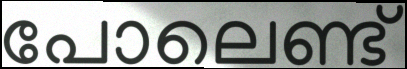
പോലെണ്ട്